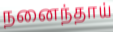
நனைந்தாய்